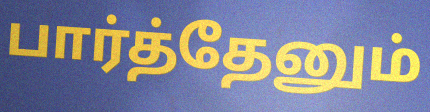
பார்த்தேனும்